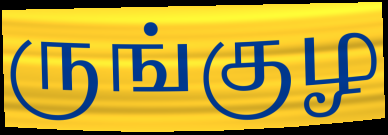
ருங்குழ